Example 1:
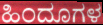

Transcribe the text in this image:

ಹಿಂದೂಗಳ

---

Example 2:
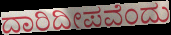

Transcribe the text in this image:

ದಾರಿದೀಪವೆಂದು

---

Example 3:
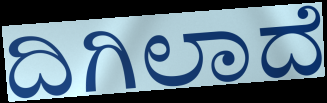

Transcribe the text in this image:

ದಿಗಿಲಾದೆ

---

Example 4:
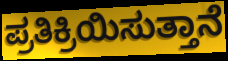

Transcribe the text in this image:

ಪ್ರತಿಕ್ರಿಯಿಸುತ್ತಾನೆ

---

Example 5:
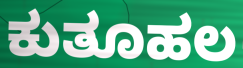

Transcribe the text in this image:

ಕುತೂಹಲ